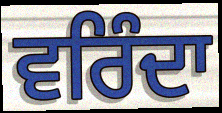
ਵਰਿੰਦਾ